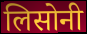
लिसोनी